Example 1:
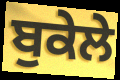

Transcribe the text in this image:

ਬੁਕੇਲੇ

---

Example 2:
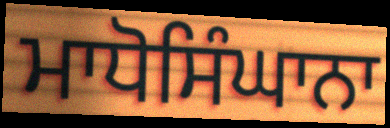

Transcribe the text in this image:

ਮਾਧੋਸਿੰਘਾਨਾ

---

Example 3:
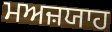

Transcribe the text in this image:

ਮਅਜ਼ਯਾਹ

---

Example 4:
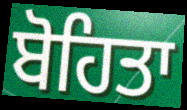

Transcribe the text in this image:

ਬੋਹਿਤਾ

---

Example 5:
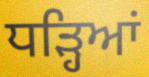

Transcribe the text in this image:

ਧੜ੍ਹਿਆਂ